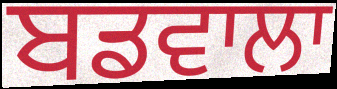
ਬਡਵਾਲਾ